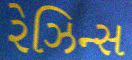
રેઝિન્સ